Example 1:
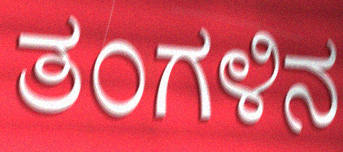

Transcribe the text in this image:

ತಂಗಳಿನ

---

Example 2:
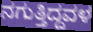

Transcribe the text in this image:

ನಗುತ್ತಿದ್ದವಳ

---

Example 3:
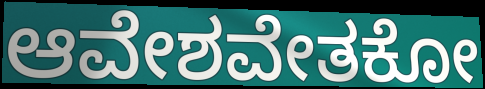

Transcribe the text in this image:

ಆವೇಶವೇತಕೋ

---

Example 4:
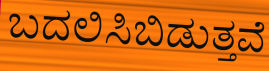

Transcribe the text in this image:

ಬದಲಿಸಿಬಿಡುತ್ತವೆ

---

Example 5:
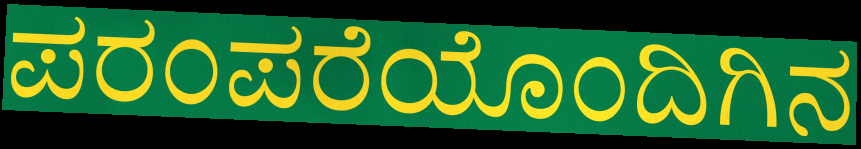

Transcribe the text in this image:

ಪರಂಪರೆಯೊಂದಿಗಿನ